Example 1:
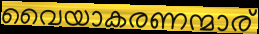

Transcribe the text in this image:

വൈയാകരണന്മാര്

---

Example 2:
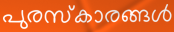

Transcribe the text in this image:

പുരസ്കാരങ്ങൾ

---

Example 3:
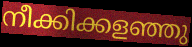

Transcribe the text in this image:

നീക്കിക്കളഞ്ഞു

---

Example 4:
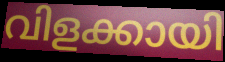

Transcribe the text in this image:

വിളക്കായി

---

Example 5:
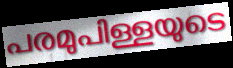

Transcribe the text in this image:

പരമുപിള്ളയുടെ